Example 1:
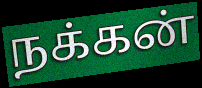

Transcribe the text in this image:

நக்கன்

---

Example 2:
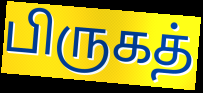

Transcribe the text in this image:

பிருகத்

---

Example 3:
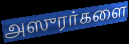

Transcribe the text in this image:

அஸுரர்களை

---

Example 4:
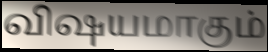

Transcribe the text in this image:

விஷயமாகும்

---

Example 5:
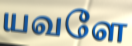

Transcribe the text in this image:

யவளே